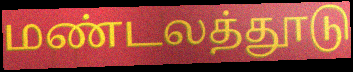
மண்டலத்தூடு